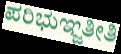
ಪರಿಭುಞ್ಜತೀತಿ